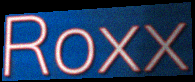
Roxx